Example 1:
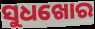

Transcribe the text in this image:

ସୁଧଖୋର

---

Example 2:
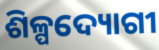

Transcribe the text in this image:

ଶିଳ୍ପଦ୍ୟୋଗୀ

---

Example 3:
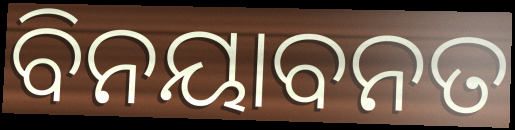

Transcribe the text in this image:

ବିନୟାବନତ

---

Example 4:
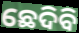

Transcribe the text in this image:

ଛେଦିବି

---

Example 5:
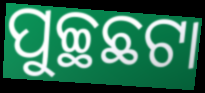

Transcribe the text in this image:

ପୁଚ୍ଛଛଟା